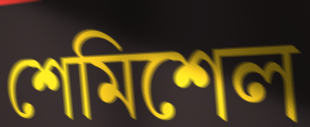
শেমিশেল